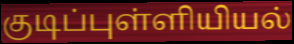
குடிப்புள்ளியியல்